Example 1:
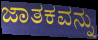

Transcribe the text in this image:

ಜಾತಕವನ್ನು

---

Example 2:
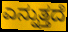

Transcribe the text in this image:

ಎನ್ನುತ್ತದೆ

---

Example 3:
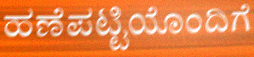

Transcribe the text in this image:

ಹಣೆಪಟ್ಟಿಯೊಂದಿಗೆ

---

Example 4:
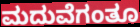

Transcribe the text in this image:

ಮದುವೆಗಂತೂ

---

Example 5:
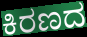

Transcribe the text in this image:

ಕಿರಣದ